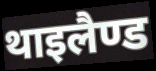
थाइलैण्ड